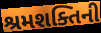
શ્રમશક્તિની